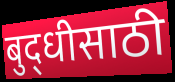
बुद्धीसाठी